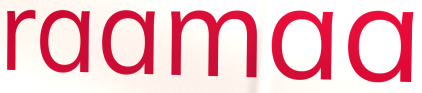
raamaa